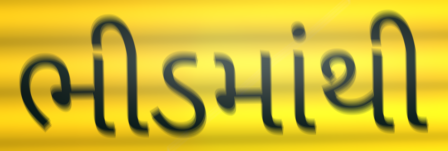
ભીડમાંથી